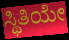
ಸ್ಥಿತಿಯೇ